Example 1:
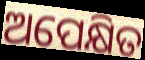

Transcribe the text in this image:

ଅପେକ୍ଷିତ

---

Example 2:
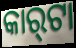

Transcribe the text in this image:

କାର୍‍ଟା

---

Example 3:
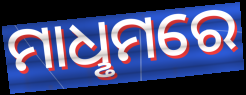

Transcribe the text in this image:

ମାଧୢମରେ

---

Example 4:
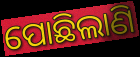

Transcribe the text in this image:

ପୋଛିଲାଣି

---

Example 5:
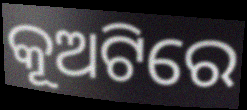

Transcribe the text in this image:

କୂଅଟିରେ